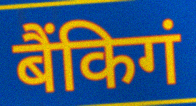
बैंकिगं